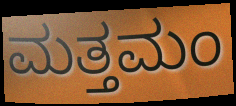
ಮತ್ತಮಂ